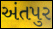
અંતપુર